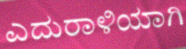
ಎದುರಾಳಿಯಾಗಿ